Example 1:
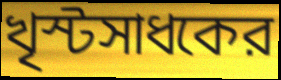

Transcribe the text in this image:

খৃস্টসাধকের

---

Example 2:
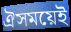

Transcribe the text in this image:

ঐসময়েই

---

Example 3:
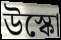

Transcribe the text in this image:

উস্কো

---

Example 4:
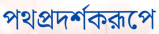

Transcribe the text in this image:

পথপ্রদর্শকরূপে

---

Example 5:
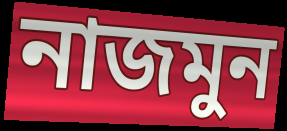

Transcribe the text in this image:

নাজমুন